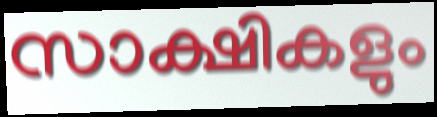
സാക്ഷികളും